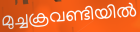
മുച്ചക്രവണ്ടിയിൽ